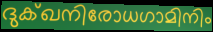
ദുക്ഖനിരോധഗാമിനിം